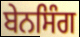
ਬੇਨਸਿੰਗ